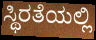
ಸ್ಥಿರತೆಯಲ್ಲಿ